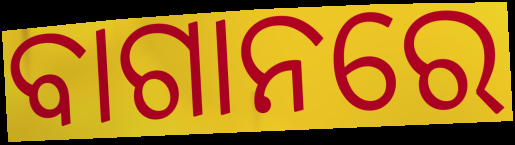
ବାଗାନରେ